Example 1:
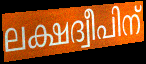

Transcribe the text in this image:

ലക്ഷദ്വീപിന്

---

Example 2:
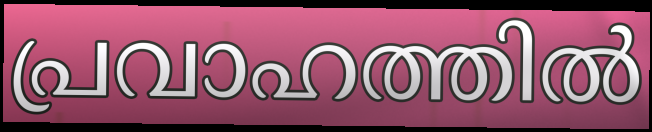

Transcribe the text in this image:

പ്രവാഹത്തിൽ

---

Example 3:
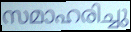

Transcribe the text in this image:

സമാഹരിച്ചു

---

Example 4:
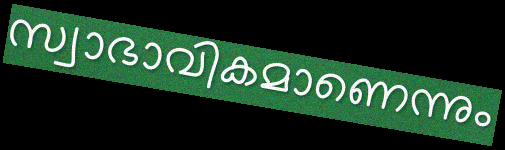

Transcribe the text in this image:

സ്വാഭാവികമാണെന്നും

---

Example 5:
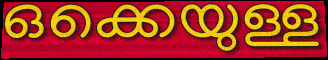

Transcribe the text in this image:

ഒക്കെയുള്ള